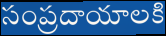
సంప్రదాయాలకి